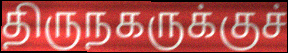
திருநகருக்குச்